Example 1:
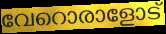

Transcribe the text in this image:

വേറൊരാളോട്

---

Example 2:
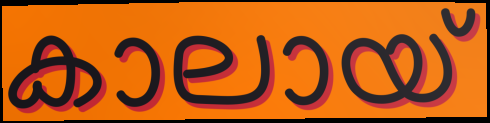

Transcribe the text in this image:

കാലായ്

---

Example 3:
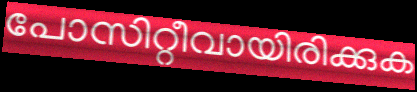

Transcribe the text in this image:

പോസിറ്റീവായിരിക്കുക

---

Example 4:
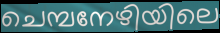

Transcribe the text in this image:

ചെമ്പനേഴിയിലെ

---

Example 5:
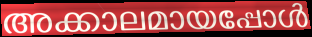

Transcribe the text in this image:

അക്കാലമായപ്പോൾ